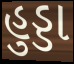
હુડ્ડા